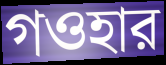
গওহার